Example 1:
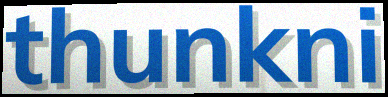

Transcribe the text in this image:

thunkni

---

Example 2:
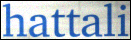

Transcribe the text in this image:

hattali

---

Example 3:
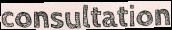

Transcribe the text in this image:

consultation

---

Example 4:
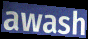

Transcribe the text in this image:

awash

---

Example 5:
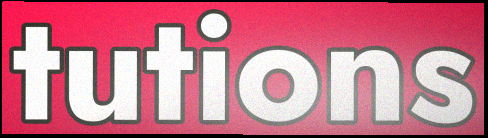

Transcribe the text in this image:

tutions